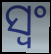
ସ୍ୱଂ